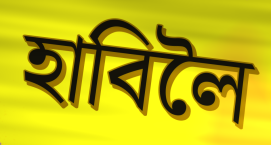
হাবিলৈ